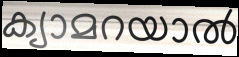
ക്യാമറയാൽ